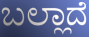
ಬಲ್ಲಾದೆ